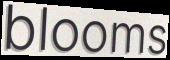
blooms